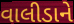
વાલીડાને